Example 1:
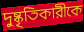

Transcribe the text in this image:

দুষ্কৃতিকারীকে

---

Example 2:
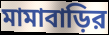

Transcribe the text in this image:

মামাবাড়ির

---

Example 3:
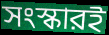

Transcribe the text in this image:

সংস্কারই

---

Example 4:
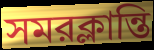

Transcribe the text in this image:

সমরক্লান্তি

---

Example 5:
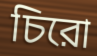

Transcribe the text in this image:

চিরো